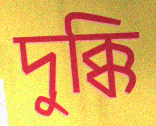
দুক্কি